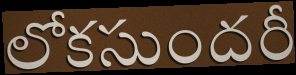
లోకసుందరీ